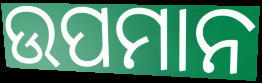
ଉପମାନ